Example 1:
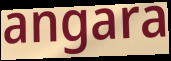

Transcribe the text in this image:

angara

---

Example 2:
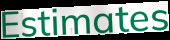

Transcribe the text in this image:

Estimates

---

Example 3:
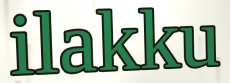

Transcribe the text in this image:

ilakku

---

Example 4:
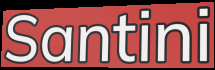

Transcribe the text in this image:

Santini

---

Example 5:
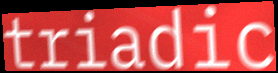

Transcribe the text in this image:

triadic